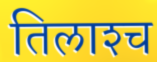
तिलाश्च